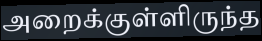
அறைக்குள்ளிருந்த